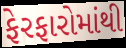
ફેરફારોમાંથી